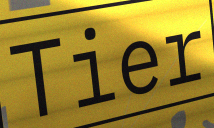
Tier